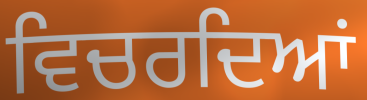
ਵਿਚਰਦਿਆਂ